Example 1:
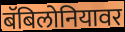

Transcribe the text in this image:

बॅबिलोनियावर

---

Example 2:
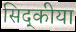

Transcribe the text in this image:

सिद्‌कीया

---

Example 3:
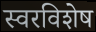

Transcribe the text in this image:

स्वरविशेष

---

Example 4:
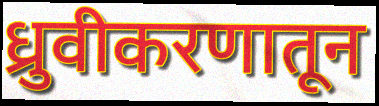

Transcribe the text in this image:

ध्रुवीकरणातून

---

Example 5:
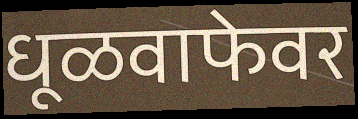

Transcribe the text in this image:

धूळवाफेवर